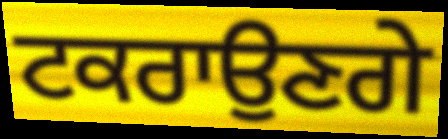
ਟਕਰਾਉਣਗੇ